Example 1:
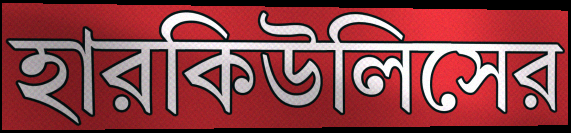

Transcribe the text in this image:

হারকিউলিসের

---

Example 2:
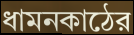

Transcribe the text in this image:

ধামনকাঠের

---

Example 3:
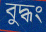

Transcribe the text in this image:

বুদ্ধং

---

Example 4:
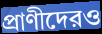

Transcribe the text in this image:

প্রাণীদেরও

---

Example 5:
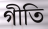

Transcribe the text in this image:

গীতি